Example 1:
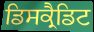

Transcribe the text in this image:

ਡਿਸਕ੍ਰੈਡਿਟ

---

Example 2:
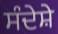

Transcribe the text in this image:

ਸੰਦੇਸ਼ੇ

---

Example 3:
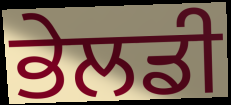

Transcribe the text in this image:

ਭੇਲਡੀ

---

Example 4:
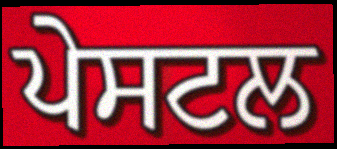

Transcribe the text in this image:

ਪੇਸਟਲ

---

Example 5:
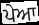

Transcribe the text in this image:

ਪੇਆ